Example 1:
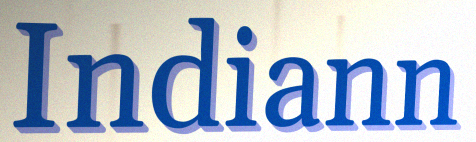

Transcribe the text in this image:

Indiann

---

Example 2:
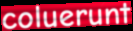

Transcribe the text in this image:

coluerunt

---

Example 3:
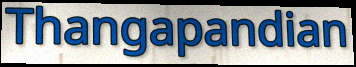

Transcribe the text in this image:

Thangapandian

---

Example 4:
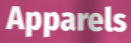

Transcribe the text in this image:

Apparels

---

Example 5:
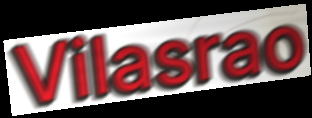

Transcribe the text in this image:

Vilasrao